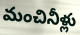
మంచినీళ్లు